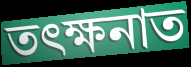
তৎক্ষনাত